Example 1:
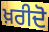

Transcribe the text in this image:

ਖ਼ਰੀਦੋ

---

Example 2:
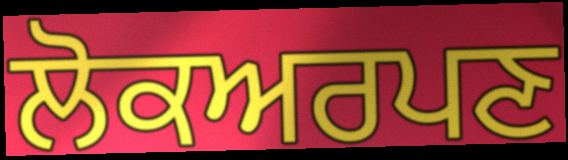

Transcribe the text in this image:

ਲੋਕਅਰਪਣ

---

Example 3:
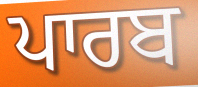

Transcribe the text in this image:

ਪਾਰਬ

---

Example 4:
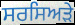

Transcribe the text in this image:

ਸਰਸਿਅੜੇ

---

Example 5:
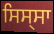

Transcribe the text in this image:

ਸਿਸ੍ਸਾ